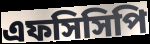
এফসিসিপি